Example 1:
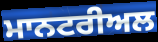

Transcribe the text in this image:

ਮਾਨਟਰੀਅਲ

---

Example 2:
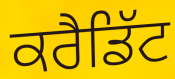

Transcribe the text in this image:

ਕਰੈਡਿੱਟ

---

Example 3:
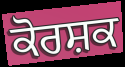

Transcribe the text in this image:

ਕੋਰਸ਼ਕ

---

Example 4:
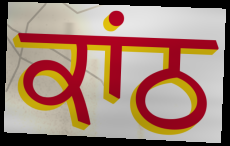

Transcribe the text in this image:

ਕਾਂਠ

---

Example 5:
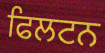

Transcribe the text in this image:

ਫਿਲਟਨ